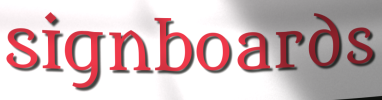
signboards